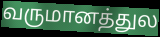
வருமானத்துல